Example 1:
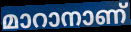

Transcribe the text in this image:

മാറാനാണ്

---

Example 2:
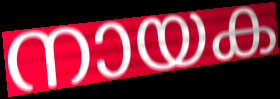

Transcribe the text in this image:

നായക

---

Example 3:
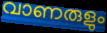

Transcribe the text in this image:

വാണരുളും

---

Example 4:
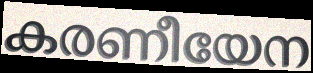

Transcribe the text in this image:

കരണീയേന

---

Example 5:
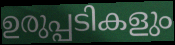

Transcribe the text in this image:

ഉരുപ്പടികളും